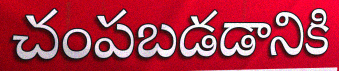
చంపబడడానికి